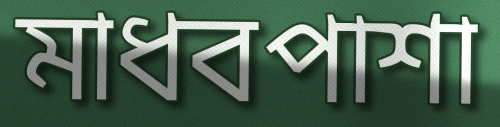
মাধবপাশা